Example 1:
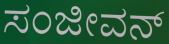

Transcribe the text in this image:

ಸಂಜೀವನ್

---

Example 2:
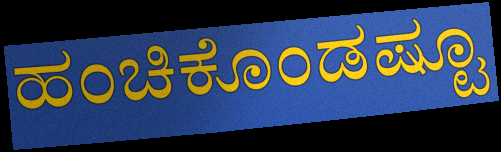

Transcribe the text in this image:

ಹಂಚಿಕೊಂಡಷ್ಟೂ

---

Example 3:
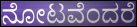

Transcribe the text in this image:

ನೋಟವೆಂದರೆ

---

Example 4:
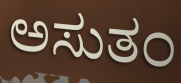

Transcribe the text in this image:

ಅಸುತಂ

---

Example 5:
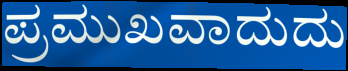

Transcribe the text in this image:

ಪ್ರಮುಖವಾದುದು